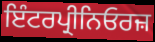
ਇੰਟਰਪ੍ਰੀਨਿਓਰਜ਼